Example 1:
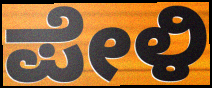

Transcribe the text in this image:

ಪೇಳಿ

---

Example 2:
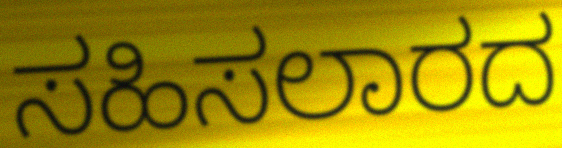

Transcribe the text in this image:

ಸಹಿಸಲಾರದ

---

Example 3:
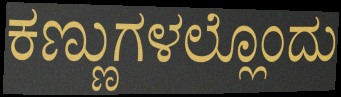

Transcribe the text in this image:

ಕಣ್ಣುಗಳಲ್ಲೊಂದು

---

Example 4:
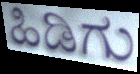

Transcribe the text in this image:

ಹಿಡಿಗು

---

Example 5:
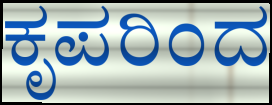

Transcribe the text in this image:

ಕೃಪರಿಂದ